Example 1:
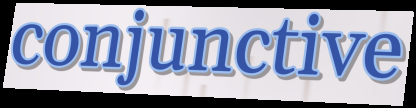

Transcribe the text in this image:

conjunctive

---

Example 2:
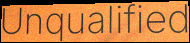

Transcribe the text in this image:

Unqualified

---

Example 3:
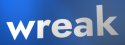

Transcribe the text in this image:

wreak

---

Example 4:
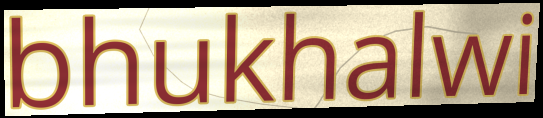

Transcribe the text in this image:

bhukhalwi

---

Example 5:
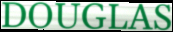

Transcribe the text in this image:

DOUGLAS